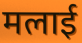
मलाई